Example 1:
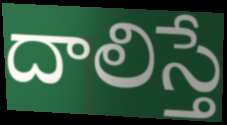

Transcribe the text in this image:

దాలిస్తే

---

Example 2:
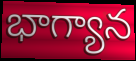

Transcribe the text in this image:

భాగ్యాన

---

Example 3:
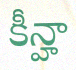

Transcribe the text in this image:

కీన్హా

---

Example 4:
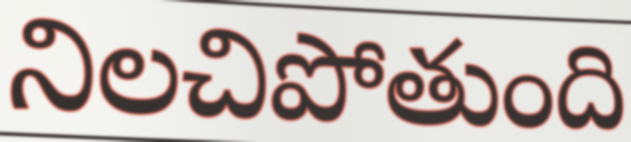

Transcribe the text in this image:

నిలచిపోతుంది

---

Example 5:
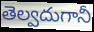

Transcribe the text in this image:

తెల్వదుగానీ